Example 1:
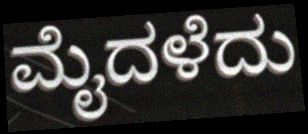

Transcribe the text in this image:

ಮೈದಳೆದು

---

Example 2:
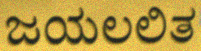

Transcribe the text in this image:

ಜಯಲಲಿತ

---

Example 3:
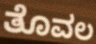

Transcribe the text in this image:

ತೊವಲ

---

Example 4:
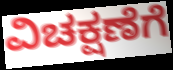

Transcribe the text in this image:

ವಿಚಕ್ಷಣೆಗೆ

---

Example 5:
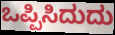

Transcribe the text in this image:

ಒಪ್ಪಿಸಿದುದು